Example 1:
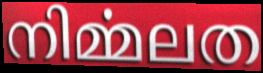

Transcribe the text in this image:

നിൎമ്മലത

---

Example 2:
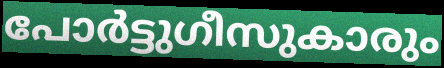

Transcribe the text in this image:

പോർട്ടുഗീസുകാരും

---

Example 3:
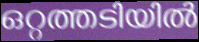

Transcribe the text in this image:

ഒറ്റത്തടിയിൽ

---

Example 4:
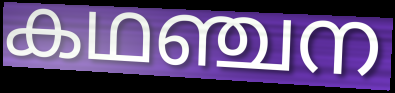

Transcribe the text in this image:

കഥഞ്ചന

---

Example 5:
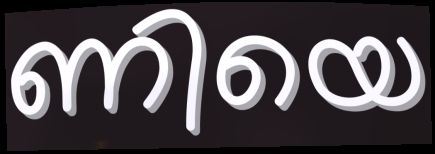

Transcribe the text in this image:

ണിയെ